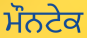
ਮੌਨਟੇਕ